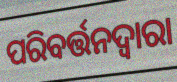
ପରିବର୍ତ୍ତନଦ୍ୱାରା